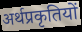
अर्थप्रकृतियों